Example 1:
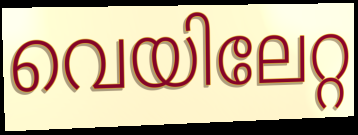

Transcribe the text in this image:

വെയിലേറ്റ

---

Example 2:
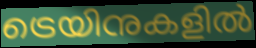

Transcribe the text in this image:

ട്രെയിനുകളിൽ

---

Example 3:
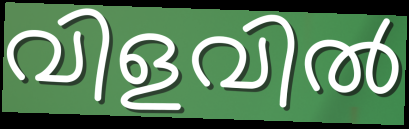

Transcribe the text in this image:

വിളവിൽ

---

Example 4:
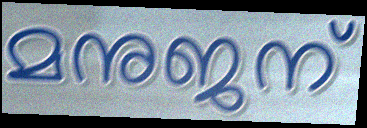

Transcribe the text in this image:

മനുജന്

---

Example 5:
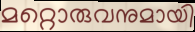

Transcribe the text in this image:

മറ്റൊരുവനുമായി